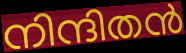
നിന്ദിതൻ